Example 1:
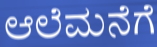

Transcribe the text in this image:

ಆಲೆಮನೆಗೆ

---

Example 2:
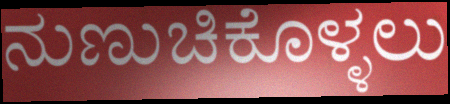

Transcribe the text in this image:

ನುಣುಚಿಕೊಳ್ಳಲು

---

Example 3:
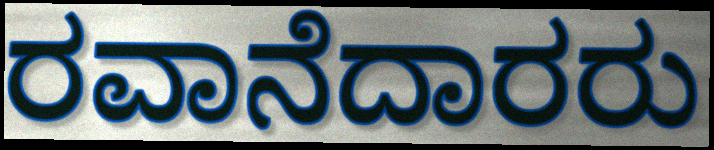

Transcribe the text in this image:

ರವಾನೆದಾರರು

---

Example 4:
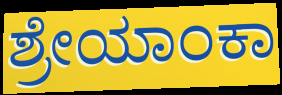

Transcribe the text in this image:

ಶ್ರೇಯಾಂಕಾ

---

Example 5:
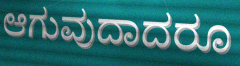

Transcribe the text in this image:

ಆಗುವುದಾದರೂ